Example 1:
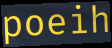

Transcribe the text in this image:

poeih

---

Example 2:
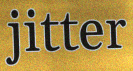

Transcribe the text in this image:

jitter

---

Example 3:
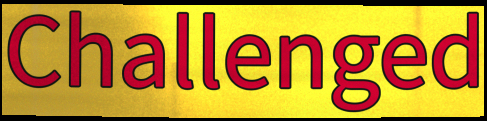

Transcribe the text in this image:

Challenged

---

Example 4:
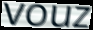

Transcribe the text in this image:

vouz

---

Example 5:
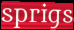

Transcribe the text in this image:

sprigs